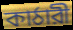
কাঠারী